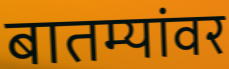
बातम्यांवर